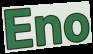
Eno